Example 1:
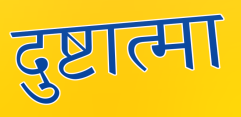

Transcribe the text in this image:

दुष्टात्मा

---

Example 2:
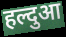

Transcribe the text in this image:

हल्दुआ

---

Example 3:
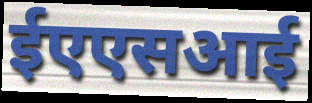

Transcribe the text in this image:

ईएएसआई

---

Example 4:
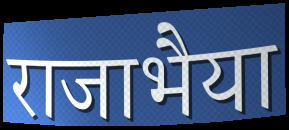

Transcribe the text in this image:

राजाभैया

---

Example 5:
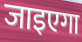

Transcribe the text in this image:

जाइएगा